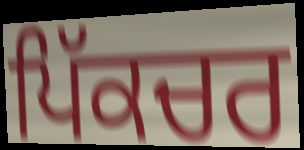
ਪਿੱਕਚਰ